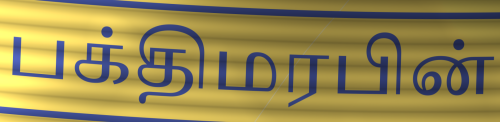
பக்திமரபின்